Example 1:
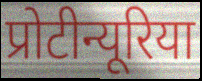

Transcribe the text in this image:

प्रोटीन्यूरिया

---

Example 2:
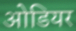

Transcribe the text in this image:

ओडियर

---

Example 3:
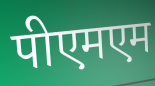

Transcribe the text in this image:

पीएमएम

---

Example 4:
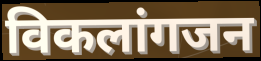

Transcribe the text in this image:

विकलांगजन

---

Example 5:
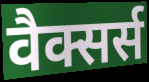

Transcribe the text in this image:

वैक्सर्स